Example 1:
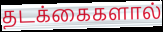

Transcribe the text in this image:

தடக்கைகளால்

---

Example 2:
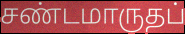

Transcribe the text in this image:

சண்டமாருதப்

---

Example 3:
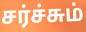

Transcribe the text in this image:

சர்ச்சும்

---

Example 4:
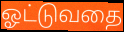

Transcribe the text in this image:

ஓட்டுவதை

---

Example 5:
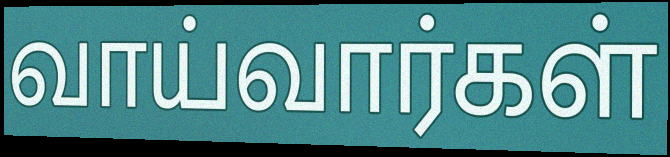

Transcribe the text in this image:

வாய்வார்கள்